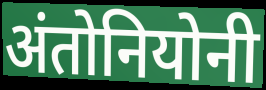
अंतोनियोनी